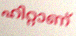
ഹിറ്റാണ്